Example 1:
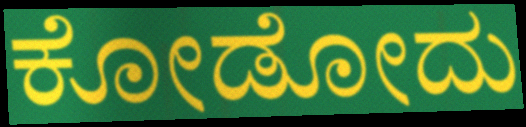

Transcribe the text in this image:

ಕೋಡೋದು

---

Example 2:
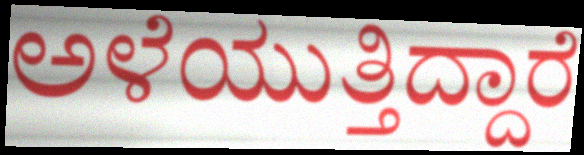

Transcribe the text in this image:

ಅಳೆಯುತ್ತಿದ್ದಾರೆ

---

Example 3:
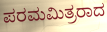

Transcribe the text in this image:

ಪರಮಮಿತ್ರರಾದ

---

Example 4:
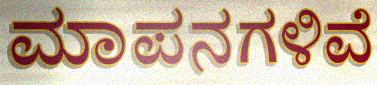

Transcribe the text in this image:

ಮಾಪನಗಳಿವೆ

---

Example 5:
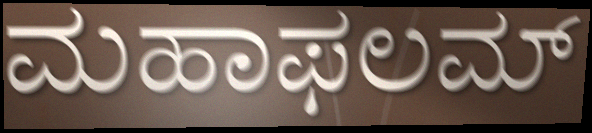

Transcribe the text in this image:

ಮಹಾಫಲಮ್